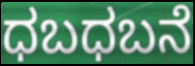
ಧಬಧಬನೆ